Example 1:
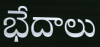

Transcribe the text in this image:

భేదాలు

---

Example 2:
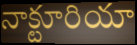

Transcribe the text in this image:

నాక్టూరియా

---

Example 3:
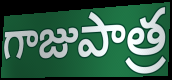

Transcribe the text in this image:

గాజుపాత్ర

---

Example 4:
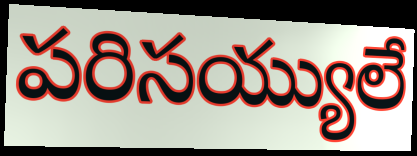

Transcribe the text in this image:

పరిసయ్యులే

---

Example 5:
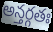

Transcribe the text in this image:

అన్తర్గతః